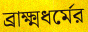
ব্রাক্ষ্মধর্মের